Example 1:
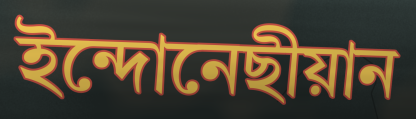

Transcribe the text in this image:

ইন্দোনেছীয়ান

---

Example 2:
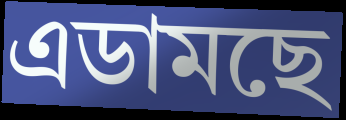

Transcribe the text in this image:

এডামছে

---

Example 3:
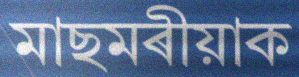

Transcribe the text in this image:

মাছমৰীয়াক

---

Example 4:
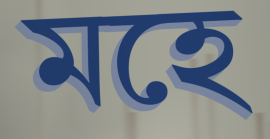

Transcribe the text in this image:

মহে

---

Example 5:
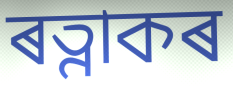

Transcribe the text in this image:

ৰত্নাকৰ